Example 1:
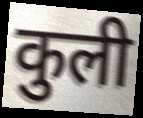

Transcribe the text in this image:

कुली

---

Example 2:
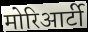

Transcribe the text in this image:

मोरिआर्टी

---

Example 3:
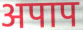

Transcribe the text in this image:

अपाप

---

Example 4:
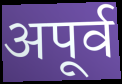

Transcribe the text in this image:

अपूर्व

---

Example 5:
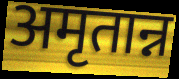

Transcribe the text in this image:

अमृतान्न